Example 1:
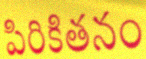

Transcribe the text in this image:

పిరికితనం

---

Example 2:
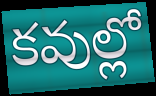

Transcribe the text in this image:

కవుల్లో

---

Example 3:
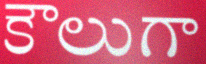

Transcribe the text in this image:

కౌలుగా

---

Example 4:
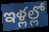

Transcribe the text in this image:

ఇళ్లల్లో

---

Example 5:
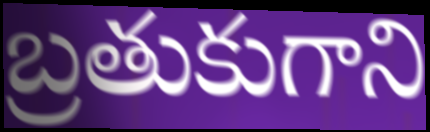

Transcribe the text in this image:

బ్రతుకుగాని